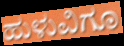
ಹುಳುವಿಗೂ